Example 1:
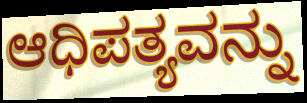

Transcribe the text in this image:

ಆಧಿಪತ್ಯವನ್ನು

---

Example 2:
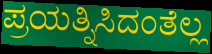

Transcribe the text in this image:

ಪ್ರಯತ್ನಿಸಿದಂತೆಲ್ಲ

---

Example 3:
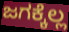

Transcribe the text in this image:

ಜಗಕ್ಕೆಲ್ಲ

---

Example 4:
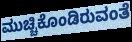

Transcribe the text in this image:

ಮುಚ್ಚಿಕೊಂಡಿರುವಂತೆ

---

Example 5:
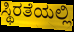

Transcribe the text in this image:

ಸ್ಥಿರತೆಯಲ್ಲಿ